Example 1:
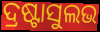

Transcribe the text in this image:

ଦ୍ରଷ୍ଟାସୁଲଭ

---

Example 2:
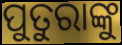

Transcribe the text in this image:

ପୁତୁରାଙ୍କୁ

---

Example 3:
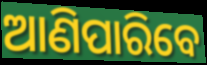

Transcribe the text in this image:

ଆଣିପାରିବେ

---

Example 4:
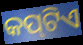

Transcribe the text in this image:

କପ୍‌ଟିଏ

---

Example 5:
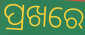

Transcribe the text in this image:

ପ୍ରଖରେ